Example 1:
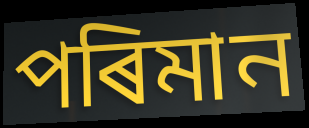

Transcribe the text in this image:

পৰিমান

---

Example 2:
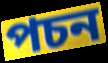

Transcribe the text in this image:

পচন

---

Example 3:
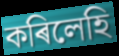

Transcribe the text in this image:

কৰিলেহি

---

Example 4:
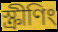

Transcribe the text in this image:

স্ক্ৰীণিং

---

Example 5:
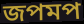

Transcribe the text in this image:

জপমপ